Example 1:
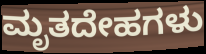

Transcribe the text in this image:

ಮೃತದೇಹಗಳು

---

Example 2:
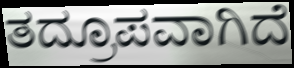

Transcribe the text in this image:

ತದ್ರೂಪವಾಗಿದೆ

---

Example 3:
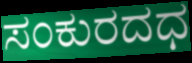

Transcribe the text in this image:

ಸಂಕುರದಧ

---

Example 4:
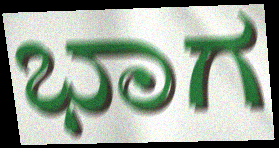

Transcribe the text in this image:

ಭಾಗ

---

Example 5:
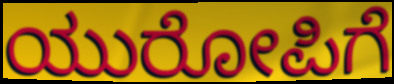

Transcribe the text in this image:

ಯುರೋಪಿಗೆ